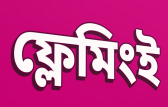
ফ্লেমিংই